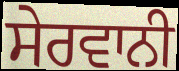
ਸੇਰਵਾਨੀ